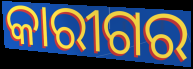
କାରୀଗର